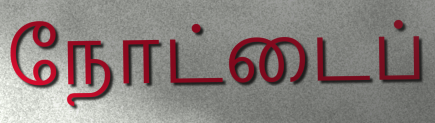
நோட்டைப்